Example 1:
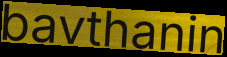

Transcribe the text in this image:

bavthanin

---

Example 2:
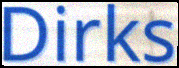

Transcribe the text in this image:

Dirks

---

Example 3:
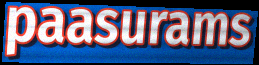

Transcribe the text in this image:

paasurams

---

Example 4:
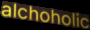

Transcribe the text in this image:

alchoholic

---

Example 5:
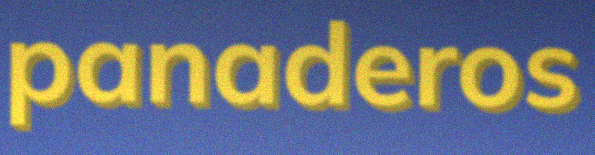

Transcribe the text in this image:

panaderos